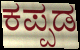
ಕಪ್ಪಡ